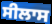
ਸੀਲਾਸ